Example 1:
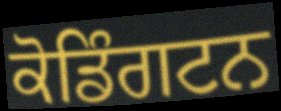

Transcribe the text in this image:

ਕੋਡਿੰਗਟਨ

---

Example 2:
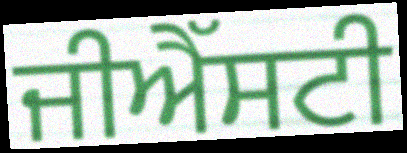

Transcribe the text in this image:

ਜੀਐੱਸਟੀ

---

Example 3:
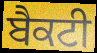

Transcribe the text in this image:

ਬੈਕਟੀ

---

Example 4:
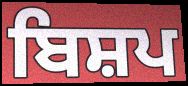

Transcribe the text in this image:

ਬਿਸ਼ਪ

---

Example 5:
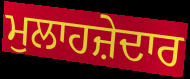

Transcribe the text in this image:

ਮੁਲਾਹਜ਼ੇਦਾਰ